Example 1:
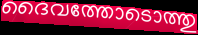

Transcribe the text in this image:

ദൈവത്തോടൊത്തു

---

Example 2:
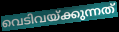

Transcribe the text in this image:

വെടിവയ്ക്കുന്നത്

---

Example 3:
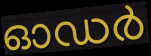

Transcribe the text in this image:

ഓഡർ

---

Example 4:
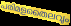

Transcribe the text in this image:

പരിമളതൈലവും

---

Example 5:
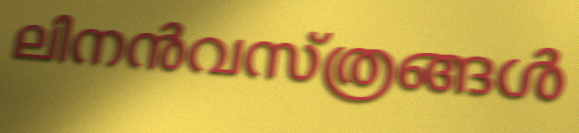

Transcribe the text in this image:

ലിനൻവസ്‌ത്രങ്ങൾ